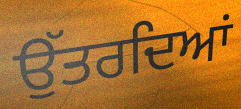
ਉੱਤਰਦਿਆਂ